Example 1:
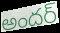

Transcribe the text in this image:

అందర్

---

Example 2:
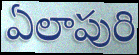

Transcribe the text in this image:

ఏలాపురి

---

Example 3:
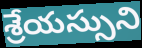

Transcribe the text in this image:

శ్రేయస్సుని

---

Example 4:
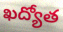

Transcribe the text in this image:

ఖద్యోత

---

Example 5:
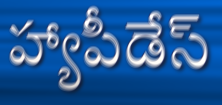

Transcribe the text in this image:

హ్యాపీడేస్